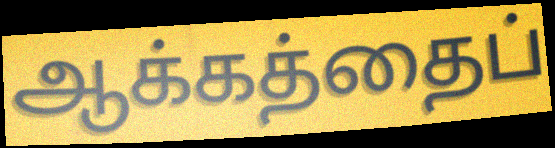
ஆக்கத்தைப்